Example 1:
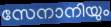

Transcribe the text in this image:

സേനാനിയും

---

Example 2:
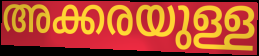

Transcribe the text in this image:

അക്കരയുള്ള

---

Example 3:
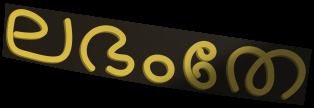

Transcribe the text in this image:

ലഭംതേ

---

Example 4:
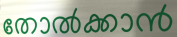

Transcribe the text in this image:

തോൽക്കാൻ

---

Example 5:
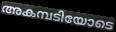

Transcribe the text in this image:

അകമ്പടിയോടെ